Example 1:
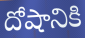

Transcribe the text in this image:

దోషానికి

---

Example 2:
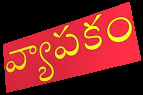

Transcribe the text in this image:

వ్యాపకం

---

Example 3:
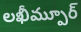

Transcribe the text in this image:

లఖీమ్పూర్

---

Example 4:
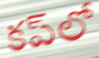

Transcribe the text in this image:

కప్‌లో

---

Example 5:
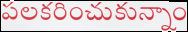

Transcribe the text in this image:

పలకరించుకున్నాం